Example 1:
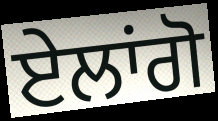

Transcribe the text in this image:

ਏਲਾਂਗੋ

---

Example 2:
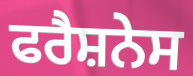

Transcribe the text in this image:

ਫਰੈਸ਼ਨੇਸ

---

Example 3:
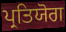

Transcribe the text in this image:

ਪ੍ਰਤਿਯੋਗ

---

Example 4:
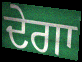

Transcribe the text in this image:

ਦੇਗਾ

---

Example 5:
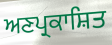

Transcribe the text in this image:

ਅਣਪ੍ਰਕਾਸ਼ਿਤ